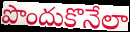
పొందుకొనేలా